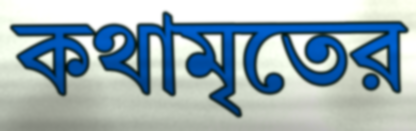
কথামৃতের